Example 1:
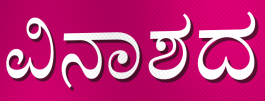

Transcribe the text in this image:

ವಿನಾಶದ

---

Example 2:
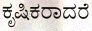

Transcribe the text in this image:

ಕೃಷಿಕರಾದರೆ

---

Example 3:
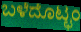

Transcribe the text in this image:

ಬಳೆದೊಟ್ಟಂ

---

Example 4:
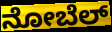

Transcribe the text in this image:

ನೋಬೆಲ್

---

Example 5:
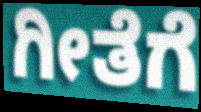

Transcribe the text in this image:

ಗೀತೆಗೆ